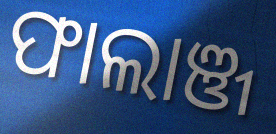
ଫାଲାଞ୍ଜ